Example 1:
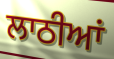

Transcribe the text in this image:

ਲਾਠੀਆਂ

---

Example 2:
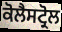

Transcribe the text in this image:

ਕੋਲੈਸਟ੍ਰੋਲ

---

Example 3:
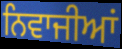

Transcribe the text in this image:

ਨਿਵਾਜੀਆਂ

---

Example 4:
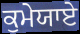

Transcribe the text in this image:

ਕੁਮੇਯਾਏ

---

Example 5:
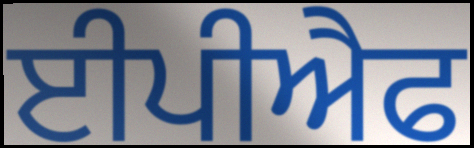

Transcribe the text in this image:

ਈਪੀਐਫ